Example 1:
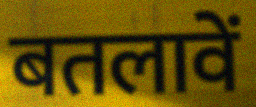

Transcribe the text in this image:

बतलावें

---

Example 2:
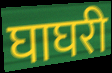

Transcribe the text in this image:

घाघरी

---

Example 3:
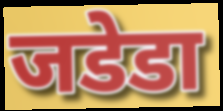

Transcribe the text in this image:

जडेडा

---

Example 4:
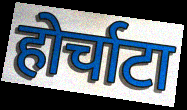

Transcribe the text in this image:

होर्चाटा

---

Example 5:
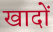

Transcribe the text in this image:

खादों